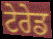
ਟੇਰੇਡ